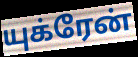
யுக்ரேன்